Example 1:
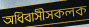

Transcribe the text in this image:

অধিবাসীসকলক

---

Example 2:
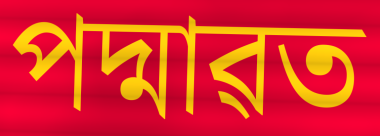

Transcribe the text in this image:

পদ্মাৱত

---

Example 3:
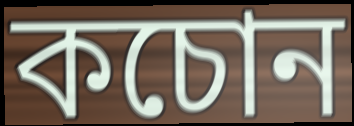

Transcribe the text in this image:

কচোন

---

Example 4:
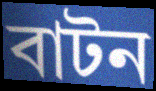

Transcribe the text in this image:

বাটন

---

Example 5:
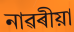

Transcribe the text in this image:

নাৱৰীয়া